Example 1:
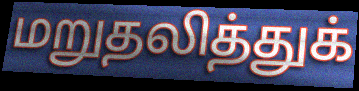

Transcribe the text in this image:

மறுதலித்துக்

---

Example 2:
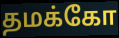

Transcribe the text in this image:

தமக்கோ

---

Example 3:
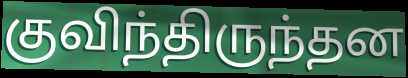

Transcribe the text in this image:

குவிந்திருந்தன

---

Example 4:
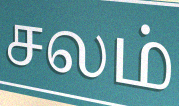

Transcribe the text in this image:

சலம்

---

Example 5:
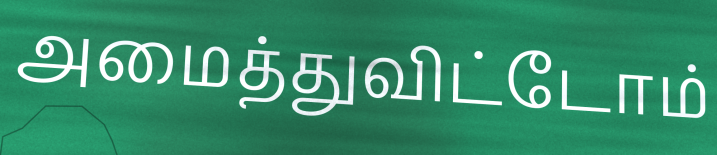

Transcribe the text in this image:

அமைத்துவிட்டோம்